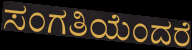
ಸಂಗತಿಯೆಂದರೆ